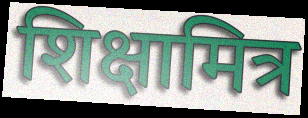
शिक्षामित्र